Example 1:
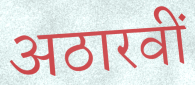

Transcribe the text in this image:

अठारवीं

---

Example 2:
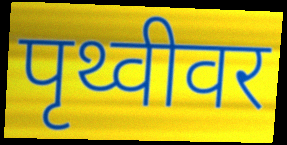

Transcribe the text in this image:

पृथ्वीवर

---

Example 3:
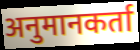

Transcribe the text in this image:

अनुमानकर्ता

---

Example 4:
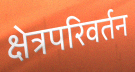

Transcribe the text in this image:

क्षेत्रपरिवर्तन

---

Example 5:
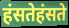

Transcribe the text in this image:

हंसतेहंसते